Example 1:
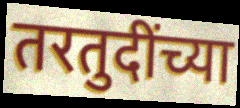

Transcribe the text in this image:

तरतुदींच्या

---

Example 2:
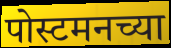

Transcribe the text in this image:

पोस्टमनच्या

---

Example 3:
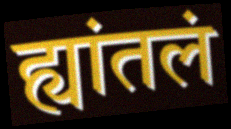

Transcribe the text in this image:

ह्यांतलं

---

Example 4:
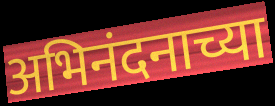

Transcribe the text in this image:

अभिनंदनाच्या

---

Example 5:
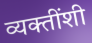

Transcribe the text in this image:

व्यक्तींशी